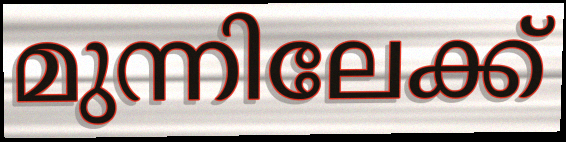
മുന്നിലേക്ക്